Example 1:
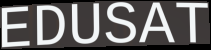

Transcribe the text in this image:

EDUSAT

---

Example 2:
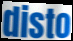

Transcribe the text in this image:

disto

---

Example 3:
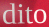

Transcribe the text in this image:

dito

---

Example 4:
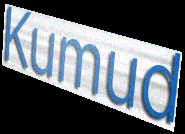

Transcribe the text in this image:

Kumud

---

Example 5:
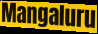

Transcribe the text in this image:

Mangaluru